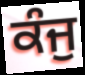
ਕੰਜੁ